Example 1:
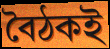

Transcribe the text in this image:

বৈঠকই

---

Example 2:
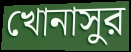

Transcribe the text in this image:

খোনাসুর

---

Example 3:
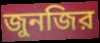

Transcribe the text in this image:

জুনজির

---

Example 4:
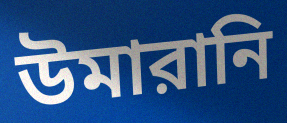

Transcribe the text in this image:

উমারানি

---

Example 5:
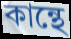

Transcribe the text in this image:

কান্থে